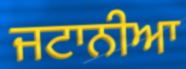
ਜਟਾਨੀਆ